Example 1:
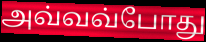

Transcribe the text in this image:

அவ்வவ்போது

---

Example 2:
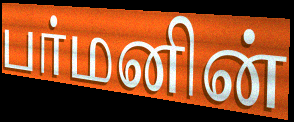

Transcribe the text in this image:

பர்மனின்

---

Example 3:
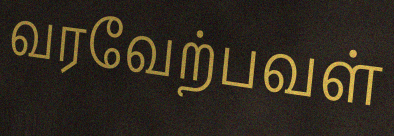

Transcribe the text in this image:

வரவேற்பவள்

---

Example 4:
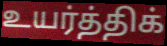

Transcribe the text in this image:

உயர்த்திக்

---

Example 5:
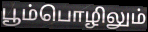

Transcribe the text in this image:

பூம்பொழிலும்